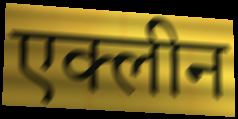
एक्लीन